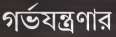
গর্ভযন্ত্রণার